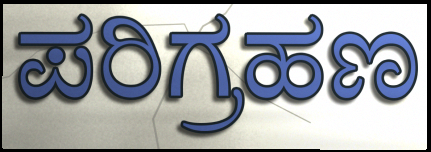
ಪರಿಗ್ರಹಣ